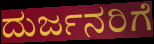
ದುರ್ಜನರಿಗೆ